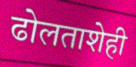
ढोलताशेही